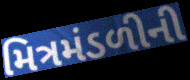
મિત્રમંડળીની